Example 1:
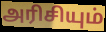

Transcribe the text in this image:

அரிசியும்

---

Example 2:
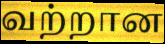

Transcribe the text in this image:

வற்றான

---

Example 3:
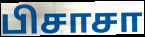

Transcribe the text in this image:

பிசாசா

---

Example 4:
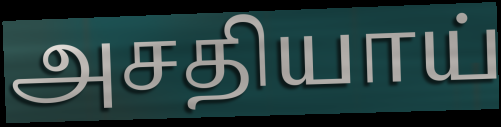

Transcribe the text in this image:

அசதியாய்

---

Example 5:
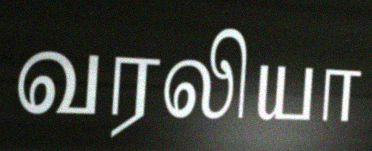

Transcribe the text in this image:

வரலியா